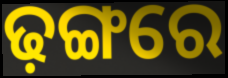
ଢ଼ଙ୍ଗରେ